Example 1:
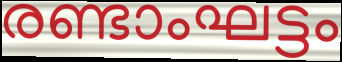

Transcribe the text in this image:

രണ്ടാംഘട്ടം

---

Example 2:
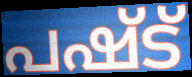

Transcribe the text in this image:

പഷ്ട്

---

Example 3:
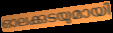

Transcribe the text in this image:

ഓലക്കുടയുമായി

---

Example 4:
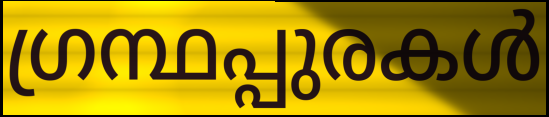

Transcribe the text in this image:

ഗ്രന്ഥപ്പുരകൾ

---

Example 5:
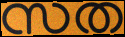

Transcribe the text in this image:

സത